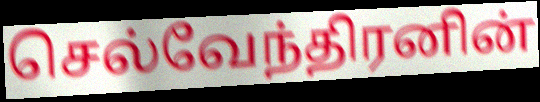
செல்வேந்திரனின்